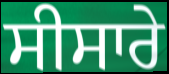
ਸੀਸਾਰੇ